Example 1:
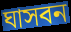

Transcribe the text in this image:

ঘাসবন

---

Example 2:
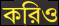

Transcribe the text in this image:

করিও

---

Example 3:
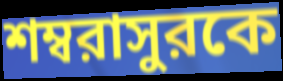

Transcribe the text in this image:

শম্বরাসুরকে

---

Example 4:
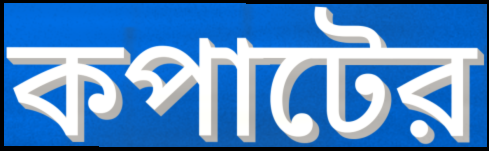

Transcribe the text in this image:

কপাটের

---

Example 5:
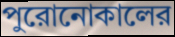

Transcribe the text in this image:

পুরোনোকালের